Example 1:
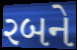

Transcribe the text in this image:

રબને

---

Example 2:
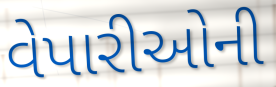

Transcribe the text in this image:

વેપારીઓની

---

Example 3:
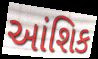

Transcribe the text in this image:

આંશિક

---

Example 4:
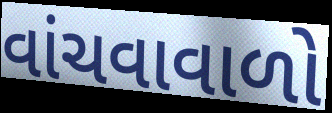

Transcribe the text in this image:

વાંચવાવાળો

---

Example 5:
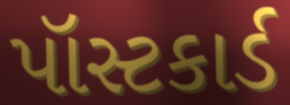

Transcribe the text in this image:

પૉસ્ટકાર્ડ